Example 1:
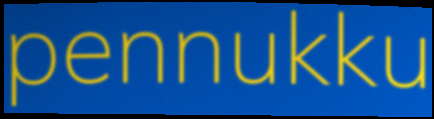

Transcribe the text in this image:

pennukku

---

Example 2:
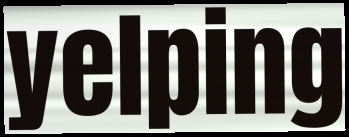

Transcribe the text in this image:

yelping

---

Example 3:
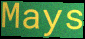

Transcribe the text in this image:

Mays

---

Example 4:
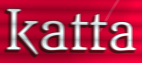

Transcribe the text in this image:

katta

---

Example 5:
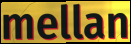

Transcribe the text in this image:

mellan